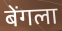
बेंगला